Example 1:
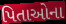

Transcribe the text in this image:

પિતાઓના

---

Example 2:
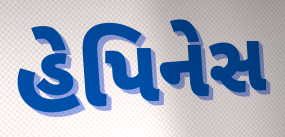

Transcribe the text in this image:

હેપિનેસ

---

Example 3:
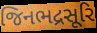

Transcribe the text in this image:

જિનભદ્રસૂરિ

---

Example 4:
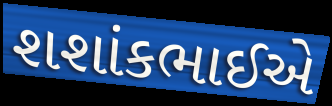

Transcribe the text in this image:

શશાંકભાઈએ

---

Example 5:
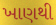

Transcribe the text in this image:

ખાણથી